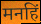
मनहिं